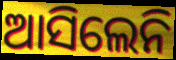
ଆସିଲେନି